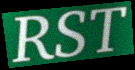
RST